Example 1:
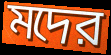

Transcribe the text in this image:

মদের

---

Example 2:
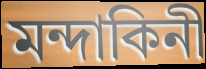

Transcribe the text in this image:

মন্দাকিনী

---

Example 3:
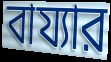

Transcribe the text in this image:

বায্যার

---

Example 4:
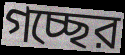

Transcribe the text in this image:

গচ্ছের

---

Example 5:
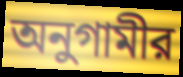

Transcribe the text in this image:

অনুগামীর